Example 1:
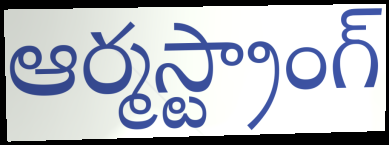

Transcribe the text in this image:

ఆర్మస్ట్రాంగ్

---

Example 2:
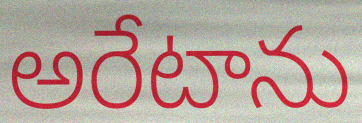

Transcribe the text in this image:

అరేటాను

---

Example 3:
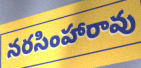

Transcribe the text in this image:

నరసింహారావు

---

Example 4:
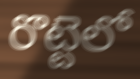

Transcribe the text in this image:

రొట్టెలో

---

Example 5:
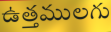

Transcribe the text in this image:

ఉత్తములగు